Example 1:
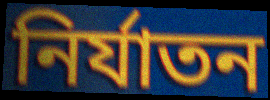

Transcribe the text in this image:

নিৰ্যাতন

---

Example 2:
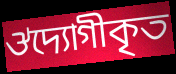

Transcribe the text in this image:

ঔদ্যোগীকৃত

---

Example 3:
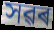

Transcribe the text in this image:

সৱৰ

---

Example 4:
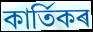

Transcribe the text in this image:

কাৰ্তিকৰ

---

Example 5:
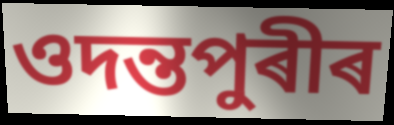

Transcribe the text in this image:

ওদন্তপুৰীৰ